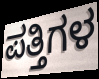
ಪತ್ತಿಗಳ